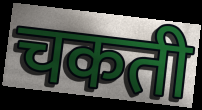
चकती